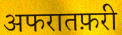
अफरातफ़री